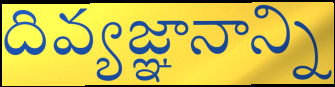
దివ్యజ్ఞానాన్ని